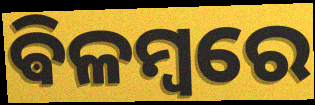
ଵିଳମ୍ବରେ